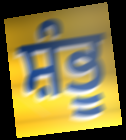
ਸ਼ੰਭੂ